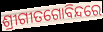
ଶ୍ରୀଗୀତଗୋବିନ୍ଦରେ